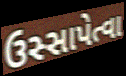
ઉસ્સાપેત્વા